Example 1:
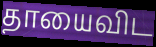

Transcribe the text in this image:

தாயைவிட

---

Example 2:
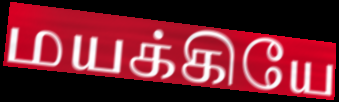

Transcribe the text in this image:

மயக்கியே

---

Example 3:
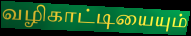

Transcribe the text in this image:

வழிகாட்டியையும்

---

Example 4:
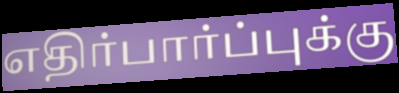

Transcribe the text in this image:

எதிர்பார்ப்புக்கு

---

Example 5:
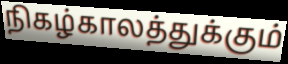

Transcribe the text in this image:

நிகழ்காலத்துக்கும்